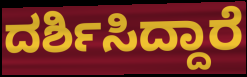
ದರ್ಶಿಸಿದ್ದಾರೆ